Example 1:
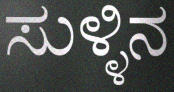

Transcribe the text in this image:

ಸುಳ್ಳಿನ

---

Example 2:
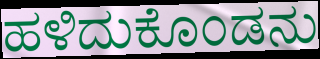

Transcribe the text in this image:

ಹಳಿದುಕೊಂಡನು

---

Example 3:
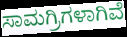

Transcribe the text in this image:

ಸಾಮಗ್ರಿಗಳಾಗಿವೆ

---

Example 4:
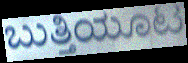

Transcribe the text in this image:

ಬುತ್ತಿಯೂಟ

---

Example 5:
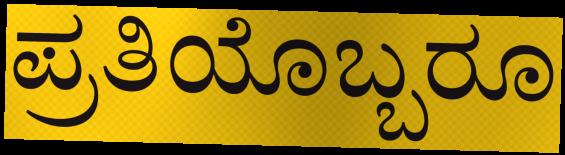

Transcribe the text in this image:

ಪ್ರತಿಯೊಬ್ಬರೂ